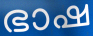
ഭാഷ